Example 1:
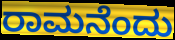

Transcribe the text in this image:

ರಾಮನೆಂದು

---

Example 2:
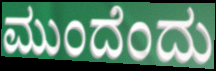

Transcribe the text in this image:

ಮುಂದೆಂದು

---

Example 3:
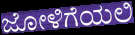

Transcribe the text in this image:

ಜೋಳಿಗೆಯಲಿ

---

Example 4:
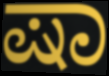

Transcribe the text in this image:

ಷಾ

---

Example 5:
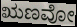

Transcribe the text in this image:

ಋಣವೋ